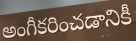
అంగీకరించడానికీ